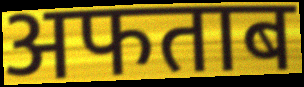
अफताब